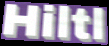
Hiltl